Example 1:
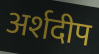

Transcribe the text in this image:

अर्शदीप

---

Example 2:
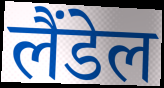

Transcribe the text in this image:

लैंडेल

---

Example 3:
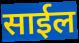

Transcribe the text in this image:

साईल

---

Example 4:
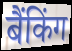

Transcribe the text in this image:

बैंकिंग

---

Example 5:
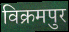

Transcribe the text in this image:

विक्रमपुर